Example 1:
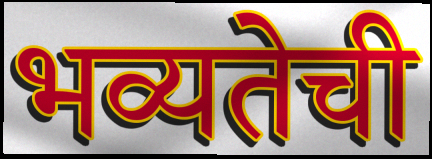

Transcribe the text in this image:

भव्यतेची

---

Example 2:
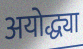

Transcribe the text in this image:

अयोद्ध्या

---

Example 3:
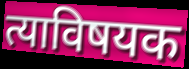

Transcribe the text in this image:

त्याविषयक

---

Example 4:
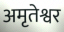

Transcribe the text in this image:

अमृतेश्वर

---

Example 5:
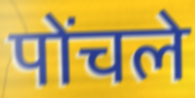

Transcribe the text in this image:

पोंचले